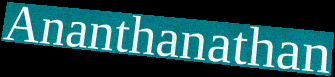
Ananthanathan